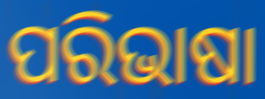
ପରିଭାଷା